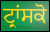
ਟ੍ਰਾਂਸਕੋ